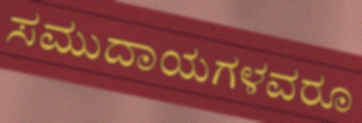
ಸಮುದಾಯಗಳವರೂ